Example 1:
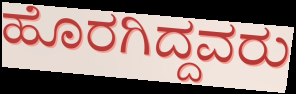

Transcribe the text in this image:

ಹೊರಗಿದ್ದವರು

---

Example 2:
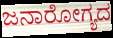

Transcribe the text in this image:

ಜನಾರೋಗ್ಯದ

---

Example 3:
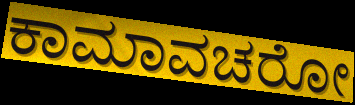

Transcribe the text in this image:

ಕಾಮಾವಚರೋ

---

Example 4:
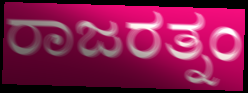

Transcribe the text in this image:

ರಾಜರತ್ನಂ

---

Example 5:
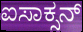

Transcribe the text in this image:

ಐಸಾಕ್ಸನ್